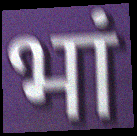
भां